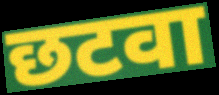
छटवा